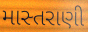
માસ્તરાણી